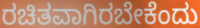
ರಚಿತವಾಗಿರಬೇಕೆಂದು